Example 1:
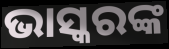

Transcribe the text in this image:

ଭାସ୍କରଙ୍କ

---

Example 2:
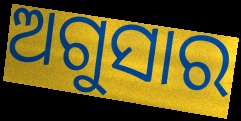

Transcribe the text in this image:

ଅଗୁସାର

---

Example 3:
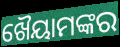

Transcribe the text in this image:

ଖୈୟାମଙ୍କର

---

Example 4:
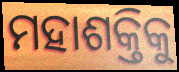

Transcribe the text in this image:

ମହାଶକ୍ତିକୁ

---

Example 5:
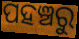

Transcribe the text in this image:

ପହଞ୍ଚରୁ